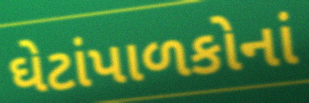
ઘેટાંપાળકોનાં